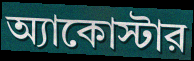
অ্যাকোস্টার